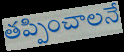
తప్పించాలనే